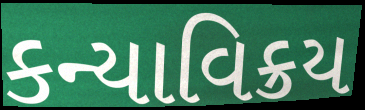
કન્યાવિક્રય